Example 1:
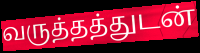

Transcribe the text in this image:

வருத்தத்துடன்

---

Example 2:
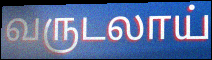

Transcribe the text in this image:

வருடலாய்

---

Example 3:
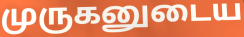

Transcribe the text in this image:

முருகனுடைய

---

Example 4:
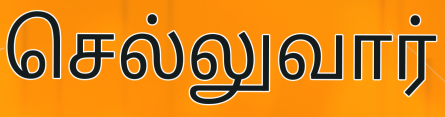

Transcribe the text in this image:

செல்லுவார்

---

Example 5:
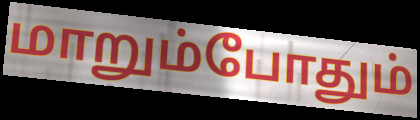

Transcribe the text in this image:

மாறும்போதும்